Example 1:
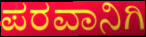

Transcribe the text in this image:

ಪರವಾನಿಗಿ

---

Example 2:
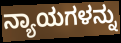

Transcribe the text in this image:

ನ್ಯಾಯಗಳನ್ನು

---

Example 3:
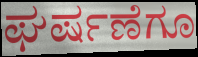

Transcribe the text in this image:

ಘರ್ಷಣೆಗೂ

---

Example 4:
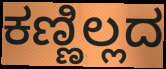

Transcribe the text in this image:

ಕಣ್ಣಿಲ್ಲದ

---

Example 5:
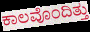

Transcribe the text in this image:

ಕಾಲವೊಂದಿತ್ತು